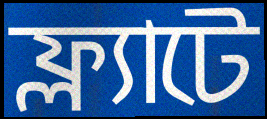
ফ্ল্যাটে